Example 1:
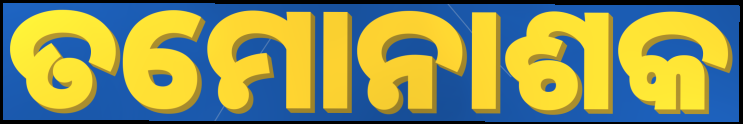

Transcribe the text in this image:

ତମୋନାଶକ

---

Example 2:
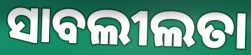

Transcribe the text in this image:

ସାବଲୀଲତା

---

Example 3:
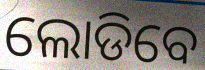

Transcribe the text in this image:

ଲୋଡିବେ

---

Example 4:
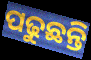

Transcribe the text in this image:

ପଢୁଛନ୍ତି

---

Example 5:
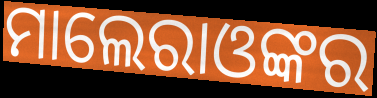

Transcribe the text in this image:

ମାଲେରାଓଙ୍କର